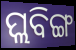
ପ୍ଲବିଙ୍ଗ